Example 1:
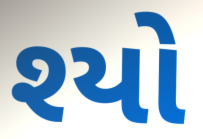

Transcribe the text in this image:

શ્યો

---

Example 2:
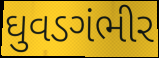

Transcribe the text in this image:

ઘુવડગંભીર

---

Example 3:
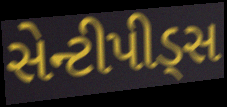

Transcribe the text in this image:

સેન્ટીપીડ્સ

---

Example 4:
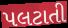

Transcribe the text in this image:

પલટાતી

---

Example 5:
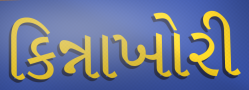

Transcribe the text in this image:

કિન્નાખોરી